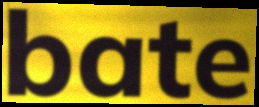
bate